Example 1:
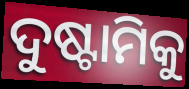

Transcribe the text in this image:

ଦୁଷ୍ଟାମିକୁ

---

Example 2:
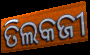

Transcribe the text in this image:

ତିଲକଜୀ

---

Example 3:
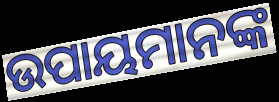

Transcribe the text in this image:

ଉପାୟମାନଙ୍କ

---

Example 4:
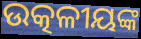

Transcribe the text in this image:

ଉତ୍କଳୀୟଙ୍କ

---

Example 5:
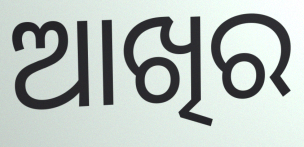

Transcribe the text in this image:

ଆଖିର